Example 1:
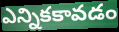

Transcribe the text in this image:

ఎన్నికకావడం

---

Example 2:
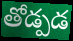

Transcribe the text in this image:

తోడ్పడ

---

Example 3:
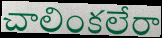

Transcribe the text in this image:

చాలింకలేరా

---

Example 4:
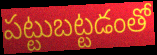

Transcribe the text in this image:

పట్టుబట్టడంతో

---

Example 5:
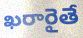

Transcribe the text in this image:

ఖరారైతే